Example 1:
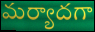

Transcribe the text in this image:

మర్యాదగా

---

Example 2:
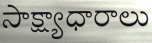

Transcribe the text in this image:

సాక్ష్యాధారాలు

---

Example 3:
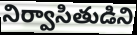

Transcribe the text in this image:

నిర్వాసితుడిని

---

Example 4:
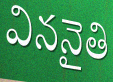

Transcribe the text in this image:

విననైతి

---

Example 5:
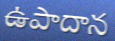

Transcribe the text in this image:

ఉపాదాన